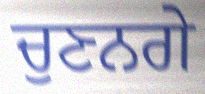
ਚੁਣਨਗੇ